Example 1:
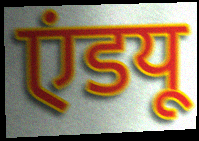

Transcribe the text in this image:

एंडयू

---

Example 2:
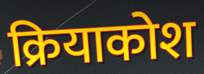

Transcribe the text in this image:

क्रियाकोश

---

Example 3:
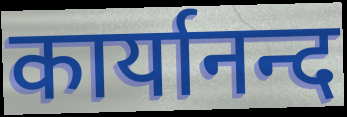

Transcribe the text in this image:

कार्यानन्द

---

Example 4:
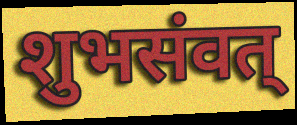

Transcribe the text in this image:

शुभसंवत्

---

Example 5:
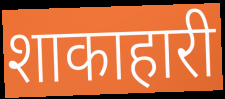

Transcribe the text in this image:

शाकाहारी